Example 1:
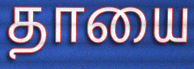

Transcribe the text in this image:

தாயை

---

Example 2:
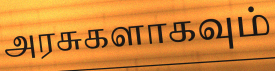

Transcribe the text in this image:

அரசுகளாகவும்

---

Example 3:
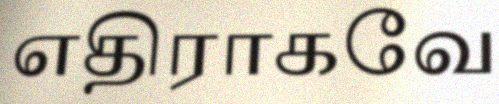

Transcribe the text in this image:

எதிராகவே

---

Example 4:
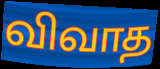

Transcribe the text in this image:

விவாத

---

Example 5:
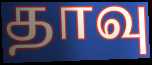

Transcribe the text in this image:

தாவு